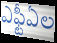
ఎఫ్టీఏల